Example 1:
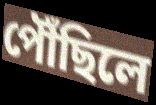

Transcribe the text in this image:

পৌঁছিলে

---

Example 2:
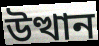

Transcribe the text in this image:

উত্থান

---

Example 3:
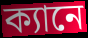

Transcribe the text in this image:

ক্যানে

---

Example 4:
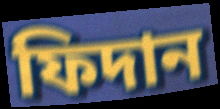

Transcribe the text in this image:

ফিদান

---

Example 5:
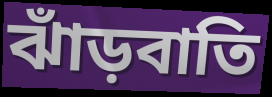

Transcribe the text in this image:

ঝাঁড়বাতি